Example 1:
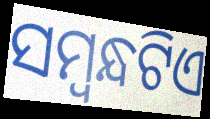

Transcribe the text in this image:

ସମ୍ୱନ୍ଧଟିଏ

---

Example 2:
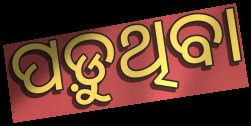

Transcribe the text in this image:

ପଡ଼ୁଥିବା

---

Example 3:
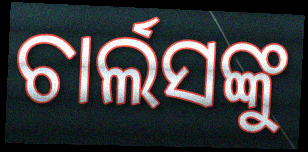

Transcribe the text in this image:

ଚାର୍ଲସଙ୍କୁ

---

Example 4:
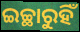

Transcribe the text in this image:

ଇଚ୍ଛାରୁହିଁ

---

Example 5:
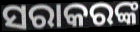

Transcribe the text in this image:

ସରାକରଙ୍କ